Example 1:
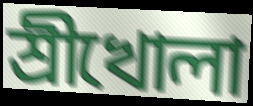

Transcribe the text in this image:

শ্রীখোলা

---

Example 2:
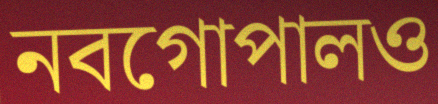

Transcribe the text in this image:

নবগোপালও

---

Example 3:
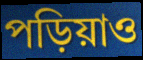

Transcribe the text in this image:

পড়িয়াও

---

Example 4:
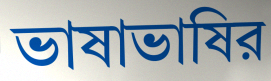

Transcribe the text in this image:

ভাষাভাষির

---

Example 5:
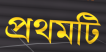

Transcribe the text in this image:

প্রথমটি